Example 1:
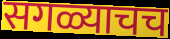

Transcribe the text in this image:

सगळ्याचच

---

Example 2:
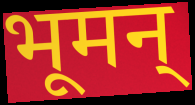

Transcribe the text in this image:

भूमन्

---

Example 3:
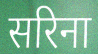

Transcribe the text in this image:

सरिना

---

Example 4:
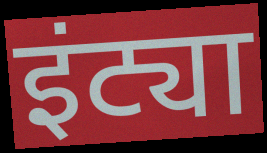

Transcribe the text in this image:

इंट्या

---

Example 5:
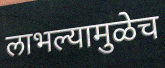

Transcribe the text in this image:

लाभल्यामुळेच